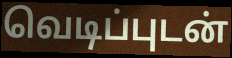
வெடிப்புடன்